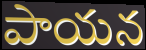
పాయన